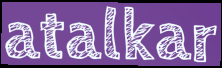
atalkar